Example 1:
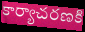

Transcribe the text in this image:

కార్యాచరణకి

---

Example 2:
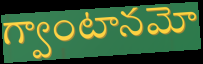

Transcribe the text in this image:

గ్వాంటానమో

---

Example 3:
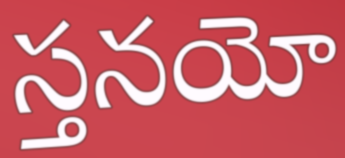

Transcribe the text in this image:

స్తనయో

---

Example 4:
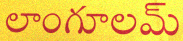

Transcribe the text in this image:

లాంగూలమ్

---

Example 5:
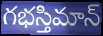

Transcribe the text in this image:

గభస్తిమాన్